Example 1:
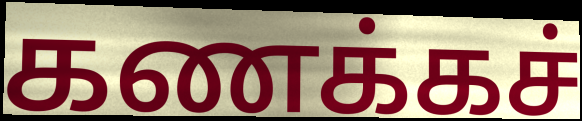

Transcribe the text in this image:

கணக்கச்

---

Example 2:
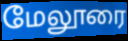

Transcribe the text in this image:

மேலூரை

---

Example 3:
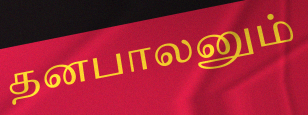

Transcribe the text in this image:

தனபாலனும்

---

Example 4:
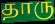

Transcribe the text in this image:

தாரு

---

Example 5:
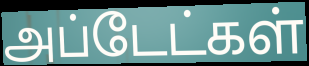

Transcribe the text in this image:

அப்டேட்கள்